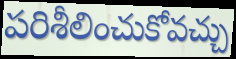
పరిశీలించుకోవచ్చు